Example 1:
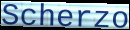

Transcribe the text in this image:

Scherzo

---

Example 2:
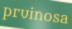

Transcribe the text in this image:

pruinosa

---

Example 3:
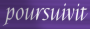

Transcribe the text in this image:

poursuivit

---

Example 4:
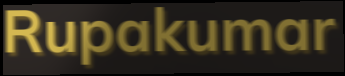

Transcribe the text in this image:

Rupakumar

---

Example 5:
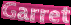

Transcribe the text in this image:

Garret